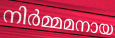
നിർമ്മമനായ